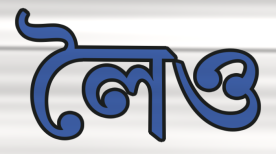
লৈও